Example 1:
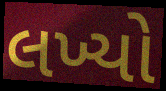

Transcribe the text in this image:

લખ્યો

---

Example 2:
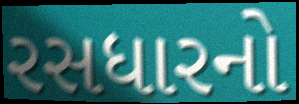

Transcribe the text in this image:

રસધારનો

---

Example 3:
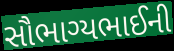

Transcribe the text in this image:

સૌભાગ્યભાઈની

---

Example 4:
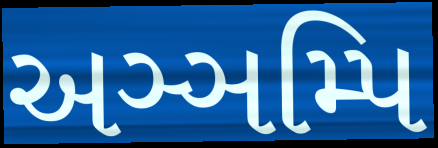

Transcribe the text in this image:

અઞ્ઞમ્પિ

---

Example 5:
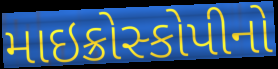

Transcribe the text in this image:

માઇક્રોસ્કોપીનો